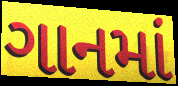
ગાનમાં